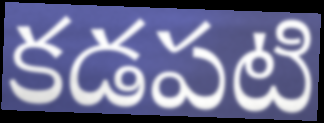
కడపటి